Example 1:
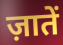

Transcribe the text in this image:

ज़ातें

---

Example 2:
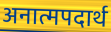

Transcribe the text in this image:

अनात्मपदार्थ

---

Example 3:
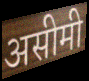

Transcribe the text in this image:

असीमी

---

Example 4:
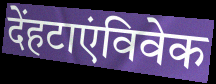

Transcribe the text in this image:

देंहटाएंविवेक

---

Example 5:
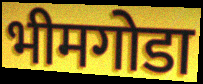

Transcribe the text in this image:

भीमगोडा